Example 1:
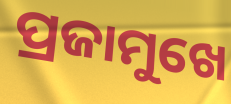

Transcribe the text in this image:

ପ୍ରଜାମୁଖେ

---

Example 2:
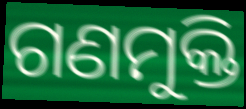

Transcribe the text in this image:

ଗଣମୁକ୍ତି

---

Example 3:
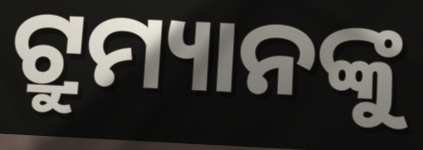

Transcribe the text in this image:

ଟ୍ରୁମ୍ୟାନଙ୍କୁ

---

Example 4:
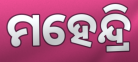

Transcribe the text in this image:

ମହେନ୍ଦ୍ରି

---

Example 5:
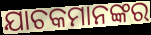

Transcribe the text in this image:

ଯାଚକମାନଙ୍କର